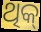
ଥିକ୍